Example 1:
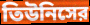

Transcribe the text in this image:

তিউনিসের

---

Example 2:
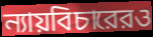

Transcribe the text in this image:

ন্যায়বিচারেরও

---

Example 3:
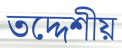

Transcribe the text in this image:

তদ্দেশীয়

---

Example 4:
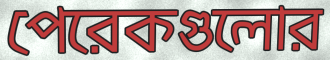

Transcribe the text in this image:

পেরেকগুলোর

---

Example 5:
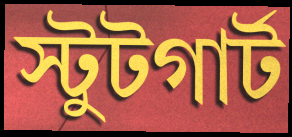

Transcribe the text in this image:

স্টুটগার্ট